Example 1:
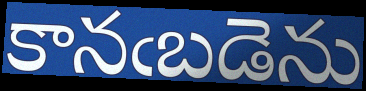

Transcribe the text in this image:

కానఁబడెను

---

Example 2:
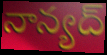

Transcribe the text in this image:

నాన్యద్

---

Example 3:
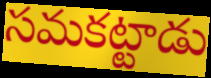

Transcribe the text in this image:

సమకట్టాడు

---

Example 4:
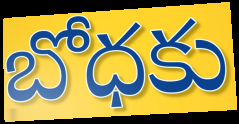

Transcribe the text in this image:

బోధకు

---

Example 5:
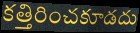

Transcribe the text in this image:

కత్తిరించకూడదు